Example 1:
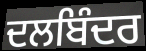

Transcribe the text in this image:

ਦਲਬਿੰਦਰ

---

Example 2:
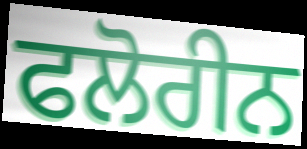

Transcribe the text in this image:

ਫਲੋਰੀਨ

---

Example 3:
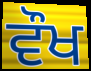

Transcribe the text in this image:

ਵੌਖ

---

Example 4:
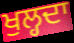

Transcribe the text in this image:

ਖੁਲ੍ਹਦਾ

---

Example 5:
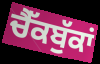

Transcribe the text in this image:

ਚੈੱਕਬੁੱਕਾਂ